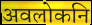
अवलोकनि